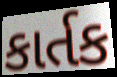
કાર્તક